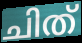
ചിത്